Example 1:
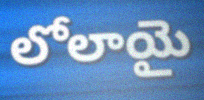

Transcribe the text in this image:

లోలాయై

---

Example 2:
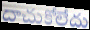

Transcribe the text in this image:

దాచుకోలేదు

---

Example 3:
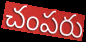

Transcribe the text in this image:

చంపరు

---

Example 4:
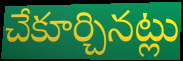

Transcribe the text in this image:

చేకూర్చినట్లు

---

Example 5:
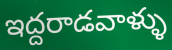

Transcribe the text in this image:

ఇద్దరాడవాళ్ళు